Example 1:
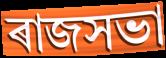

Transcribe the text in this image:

ৰাজসভা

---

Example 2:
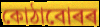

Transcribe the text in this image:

কোঠাবোৰৰ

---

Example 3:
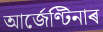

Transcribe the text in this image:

আৰ্জেণ্টিনাৰ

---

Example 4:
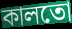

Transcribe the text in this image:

কালতো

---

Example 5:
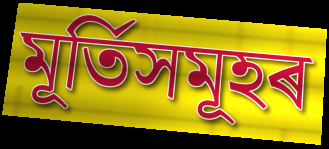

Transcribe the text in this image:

মূৰ্তিসমূহৰ